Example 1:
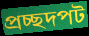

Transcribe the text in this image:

প্রচ্ছদপট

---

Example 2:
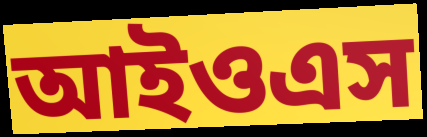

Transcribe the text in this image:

আইওএস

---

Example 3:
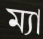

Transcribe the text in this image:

ম্যা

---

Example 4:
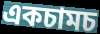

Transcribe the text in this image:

একচামচ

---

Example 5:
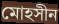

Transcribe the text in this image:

মোহসীন